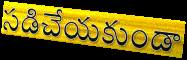
సడిచేయకుండా